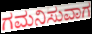
ಗಮನಿಸುವಾಗ